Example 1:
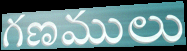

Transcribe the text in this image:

గణములు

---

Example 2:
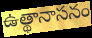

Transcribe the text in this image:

ఉత్థానాసనం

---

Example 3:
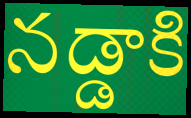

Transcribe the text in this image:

నడ్డాకి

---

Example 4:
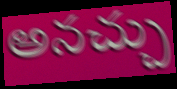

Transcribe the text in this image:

అనచ్చు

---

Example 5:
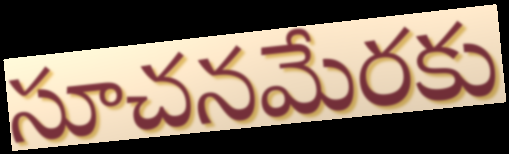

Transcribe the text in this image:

సూచనమేరకు